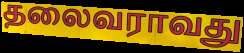
தலைவராவது